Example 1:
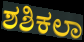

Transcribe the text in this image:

ಶಶಿಕಲಾ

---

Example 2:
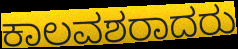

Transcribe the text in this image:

ಕಾಲವಶರಾದರು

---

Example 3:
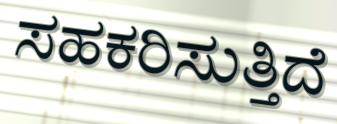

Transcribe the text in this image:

ಸಹಕರಿಸುತ್ತಿದೆ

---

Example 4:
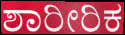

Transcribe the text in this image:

ಶಾರೀರಿಕ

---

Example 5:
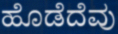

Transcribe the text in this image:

ಹೊಡೆದೆವು